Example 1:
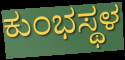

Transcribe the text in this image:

ಕುಂಭಸ್ಥಳ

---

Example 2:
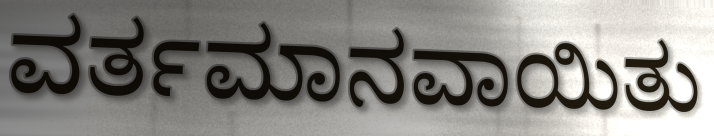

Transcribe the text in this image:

ವರ್ತಮಾನವಾಯಿತು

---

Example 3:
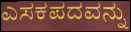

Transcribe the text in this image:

ಎಸಕಪದವನ್ನು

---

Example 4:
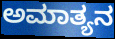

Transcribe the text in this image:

ಅಮಾತ್ಯನ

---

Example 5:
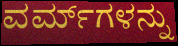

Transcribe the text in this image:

ವರ್ಮ್‌ಗಳನ್ನು